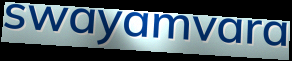
swayamvara